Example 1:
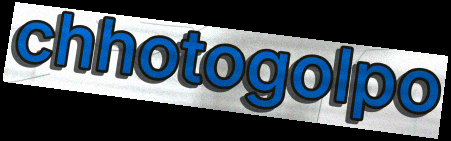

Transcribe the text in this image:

chhotogolpo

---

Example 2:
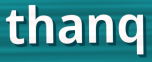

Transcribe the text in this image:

thanq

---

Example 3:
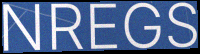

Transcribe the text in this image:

NREGS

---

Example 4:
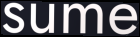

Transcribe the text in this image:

sume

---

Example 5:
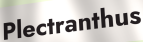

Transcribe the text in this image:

Plectranthus